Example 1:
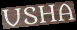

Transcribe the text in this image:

USHA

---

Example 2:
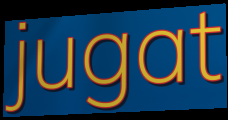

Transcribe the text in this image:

jugat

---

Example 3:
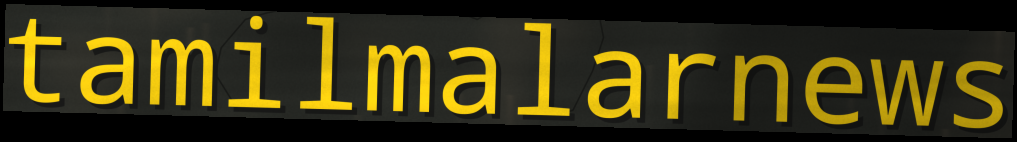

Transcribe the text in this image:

tamilmalarnews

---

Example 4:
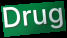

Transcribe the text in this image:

Drug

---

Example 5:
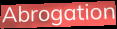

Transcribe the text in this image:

Abrogation